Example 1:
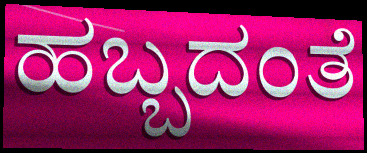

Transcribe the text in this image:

ಹಬ್ಬದಂತೆ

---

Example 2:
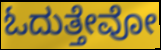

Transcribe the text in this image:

ಓದುತ್ತೇವೋ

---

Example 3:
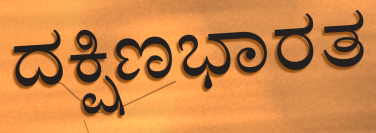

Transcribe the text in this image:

ದಕ್ಷಿಣಭಾರತ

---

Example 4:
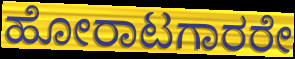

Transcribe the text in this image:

ಹೋರಾಟಗಾರರೇ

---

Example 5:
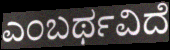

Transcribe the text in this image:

ಎಂಬರ್ಥವಿದೆ